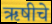
ऋषीचे